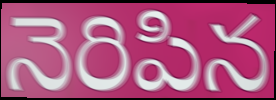
నెరిపిన